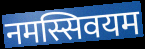
नमस्सिवयम